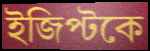
ইজিপ্টকে